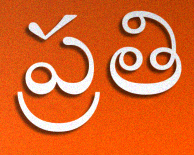
ప్రతి